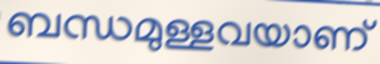
ബന്ധമുള്ളവയാണ്